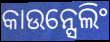
କାଉନ୍ସେଲିଂ